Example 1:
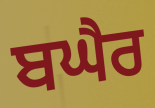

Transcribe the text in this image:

ਬਘੈਰ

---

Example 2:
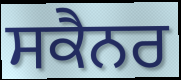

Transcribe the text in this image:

ਸਕੈਨਰ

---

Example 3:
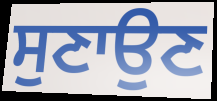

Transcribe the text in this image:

ਸੁਣਾਉਣ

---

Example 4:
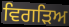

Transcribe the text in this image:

ਵਿਗੜਿਅ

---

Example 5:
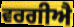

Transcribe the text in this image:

ਵਰਗੀਐ